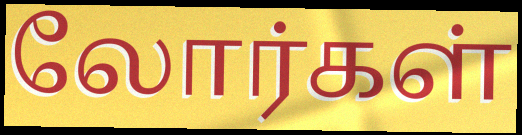
லோர்கள்